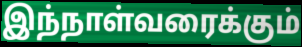
இந்நாள்வரைக்கும்